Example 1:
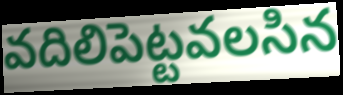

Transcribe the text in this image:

వదిలిపెట్టవలసిన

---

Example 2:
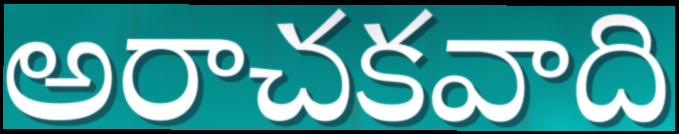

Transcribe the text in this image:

అరాచకవాది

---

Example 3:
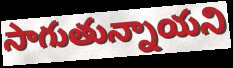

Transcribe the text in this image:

సాగుతున్నాయని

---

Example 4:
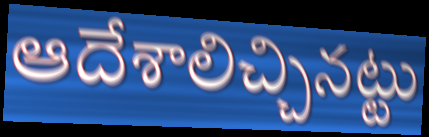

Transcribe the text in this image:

ఆదేశాలిచ్చినట్టు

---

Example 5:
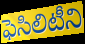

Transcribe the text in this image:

ఫెసిలిటీని